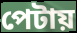
পেটায়